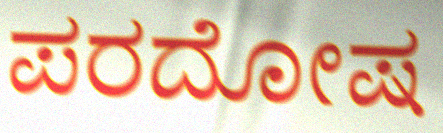
ಪರದೋಷ